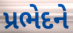
પ્રભેદને